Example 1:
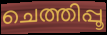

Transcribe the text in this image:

ചെത്തിപ്പൂ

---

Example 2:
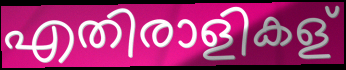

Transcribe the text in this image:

എതിരാളികള്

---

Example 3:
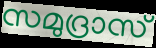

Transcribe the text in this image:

സമുദ്രാസ്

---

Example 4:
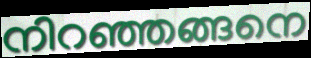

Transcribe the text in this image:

നിറഞ്ഞങ്ങനെ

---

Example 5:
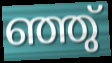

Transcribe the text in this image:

ഞ്ഞു്